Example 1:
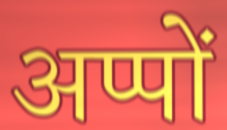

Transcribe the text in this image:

अप्पों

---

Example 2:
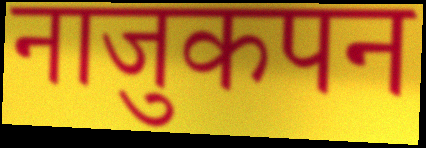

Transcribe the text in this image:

नाजुकपन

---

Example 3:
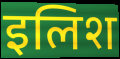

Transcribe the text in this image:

इलिश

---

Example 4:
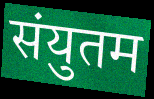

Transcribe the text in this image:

संयुतम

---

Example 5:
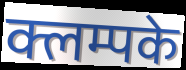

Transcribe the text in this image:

क्लम्पके